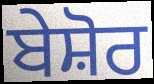
ਬੇਸ਼ੋਰ